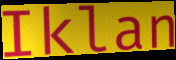
Iklan